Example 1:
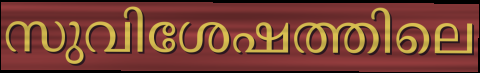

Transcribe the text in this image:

സുവിശേഷത്തിലെ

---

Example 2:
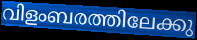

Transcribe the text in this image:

വിളംബരത്തിലേക്കു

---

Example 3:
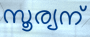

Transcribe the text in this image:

സൂര്യന്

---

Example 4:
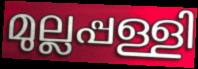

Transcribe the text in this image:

മുല്ലപ്പള്ളി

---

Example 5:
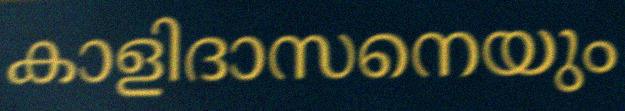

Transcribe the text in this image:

കാളിദാസനെയും